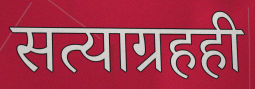
सत्याग्रहही